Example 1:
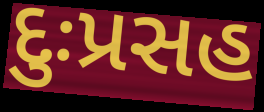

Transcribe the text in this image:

દુઃપ્રસહ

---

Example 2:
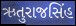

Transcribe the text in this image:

ઋતુરાજસિંહ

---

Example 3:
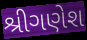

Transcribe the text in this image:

શ્રીગણેશ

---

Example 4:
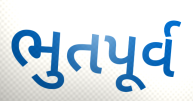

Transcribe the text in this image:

ભુતપૂર્વ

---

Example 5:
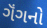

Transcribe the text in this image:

ગૅંગનો